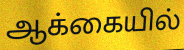
ஆக்கையில்